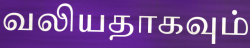
வலியதாகவும்